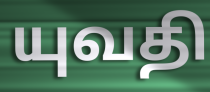
யுவதி